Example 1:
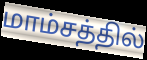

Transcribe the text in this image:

மாம்சத்தில்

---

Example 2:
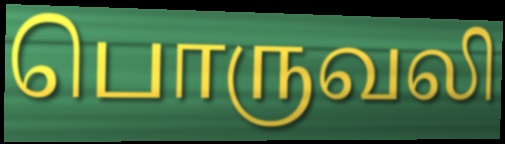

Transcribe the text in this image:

பொருவலி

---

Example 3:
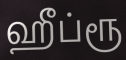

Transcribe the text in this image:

ஹீப்ரூ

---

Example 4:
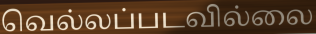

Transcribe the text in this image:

வெல்லப்படவில்லை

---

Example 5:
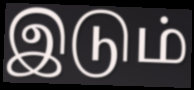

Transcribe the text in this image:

இடும்